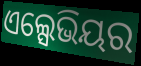
ଏଲ୍ସେଭିୟର